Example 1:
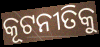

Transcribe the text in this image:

କୂଟନୀତିକୁ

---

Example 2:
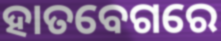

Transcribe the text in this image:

ହାତବେଗରେ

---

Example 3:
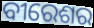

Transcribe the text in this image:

ବୀରେଶର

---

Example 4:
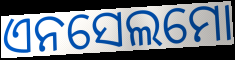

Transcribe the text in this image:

ଏନସେଲମୋ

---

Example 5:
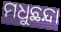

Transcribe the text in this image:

ମଧୁଛନ୍ଦା